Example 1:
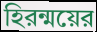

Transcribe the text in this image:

হিরন্ময়ের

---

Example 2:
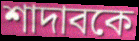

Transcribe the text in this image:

শাদাবকে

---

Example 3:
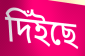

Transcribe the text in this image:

দিঁইছে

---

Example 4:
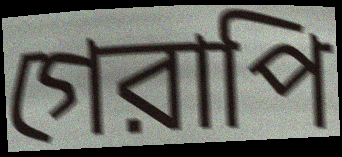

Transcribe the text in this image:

গেরাপি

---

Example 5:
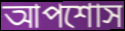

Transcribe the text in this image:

আপশোস